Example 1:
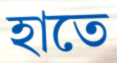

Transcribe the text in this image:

হাতে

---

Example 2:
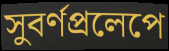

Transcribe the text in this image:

সুবর্ণপ্রলেপে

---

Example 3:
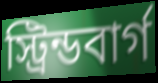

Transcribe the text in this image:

স্ট্রিন্ডবার্গ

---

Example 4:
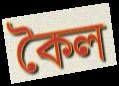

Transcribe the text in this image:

কৈল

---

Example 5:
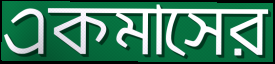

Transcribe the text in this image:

একমাসের